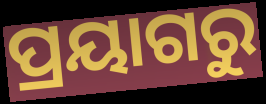
ପ୍ରୟାଗରୁ